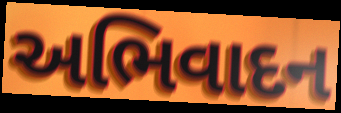
અભિવાદન